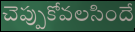
చెప్పుకోవలసిందే